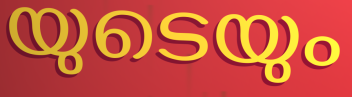
യുടെയും